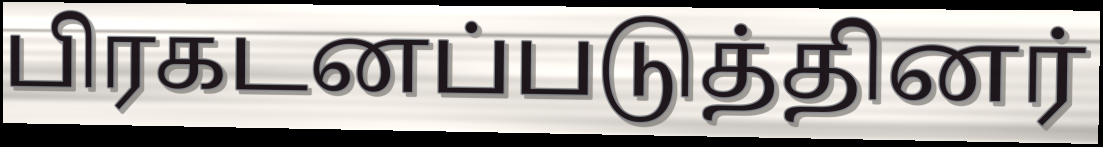
பிரகடனப்படுத்தினர்